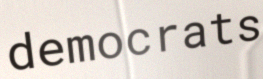
democrats